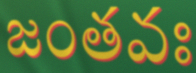
జంతవః